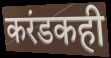
करंडकही